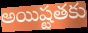
అయిష్టతకు